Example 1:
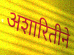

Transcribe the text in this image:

अशारितीने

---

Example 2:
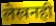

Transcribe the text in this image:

लेखनही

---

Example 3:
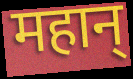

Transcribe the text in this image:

महान्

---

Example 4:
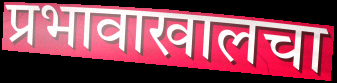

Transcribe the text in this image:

प्रभावाखालचा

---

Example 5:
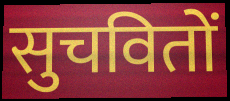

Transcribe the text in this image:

सुचवितों